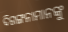
ଦିଗଙ୍ଗନାମାନଙ୍କୁ